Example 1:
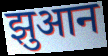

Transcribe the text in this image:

झुआन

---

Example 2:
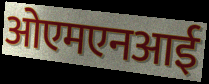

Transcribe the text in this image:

ओएमएनआई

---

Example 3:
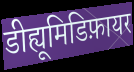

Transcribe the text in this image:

डीह्यूमिडिफ़ायर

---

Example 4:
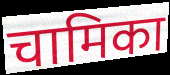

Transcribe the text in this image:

चामिका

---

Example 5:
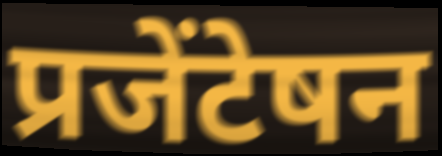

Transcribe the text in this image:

प्रजेंटेषन